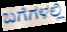
ಬಗೆಗಳಲ್ಲಿ